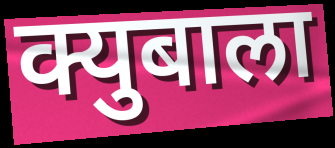
क्युबाला